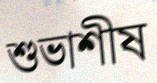
শুভাশীষ